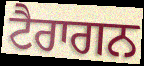
ਟੈਰਾਗਨ